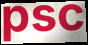
psc